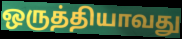
ஒருத்தியாவது